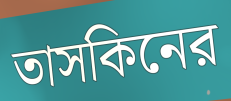
তাসকিনের